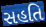
સહતિ